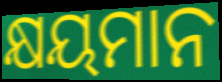
କ୍ଷୟମାନ